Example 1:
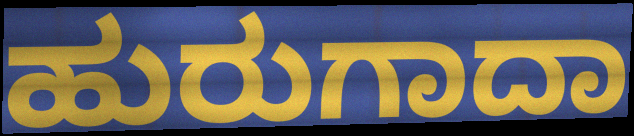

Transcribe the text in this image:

ಹುರುಗಾದಾ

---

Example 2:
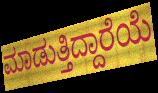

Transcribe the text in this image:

ಮಾಡುತ್ತಿದ್ದಾರೆಯೆ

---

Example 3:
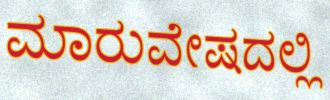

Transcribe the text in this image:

ಮಾರುವೇಷದಲ್ಲಿ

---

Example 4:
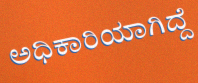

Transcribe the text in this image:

ಅಧಿಕಾರಿಯಾಗಿದ್ದೆ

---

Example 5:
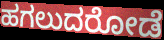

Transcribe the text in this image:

ಹಗಲುದರೋಡೆ